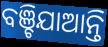
ବଞ୍ଚିଯାଆନ୍ତି